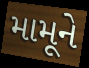
મામૂને